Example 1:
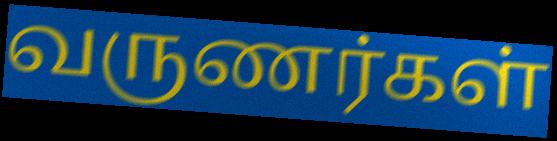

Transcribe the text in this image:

வருணர்கள்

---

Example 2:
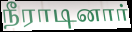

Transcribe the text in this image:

நீராடினார்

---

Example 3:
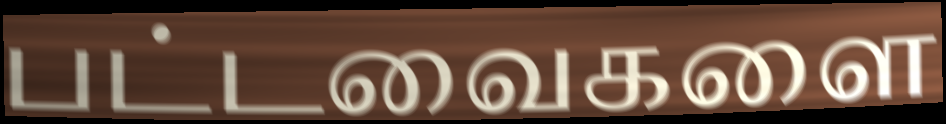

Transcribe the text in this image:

பட்டவைகளை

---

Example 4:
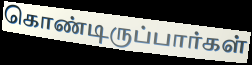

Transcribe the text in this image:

கொண்டிருப்பார்கள்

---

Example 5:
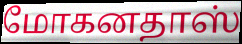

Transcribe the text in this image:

மோகனதாஸ்